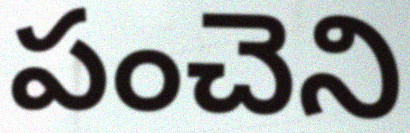
పంచెని